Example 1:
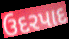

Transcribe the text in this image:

ઉદરપાદ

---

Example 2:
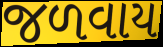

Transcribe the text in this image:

જળવાય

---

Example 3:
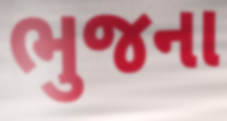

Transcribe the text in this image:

ભુજના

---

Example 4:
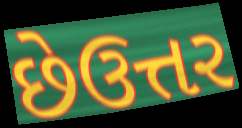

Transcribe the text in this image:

છેઉત્તર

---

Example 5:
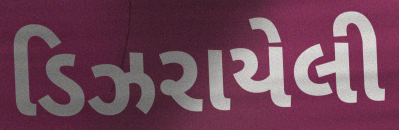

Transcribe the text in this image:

ડિઝરાયેલી